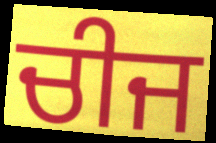
ਚੀਜ